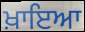
ਖ਼ਾਇਆ